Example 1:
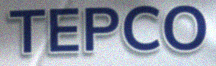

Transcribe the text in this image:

TEPCO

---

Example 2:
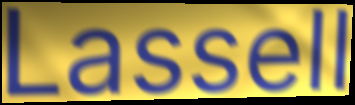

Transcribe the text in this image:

Lassell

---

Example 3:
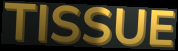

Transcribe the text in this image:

TISSUE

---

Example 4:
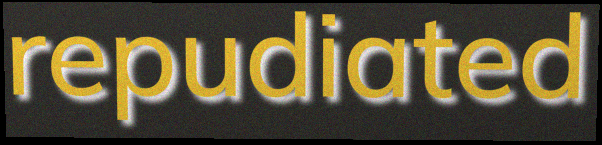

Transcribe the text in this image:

repudiated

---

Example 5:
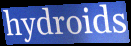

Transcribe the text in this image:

hydroids